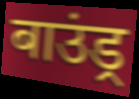
बाउंड्र